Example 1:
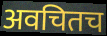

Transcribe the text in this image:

अवचितच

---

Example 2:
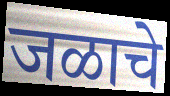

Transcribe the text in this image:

जळाचे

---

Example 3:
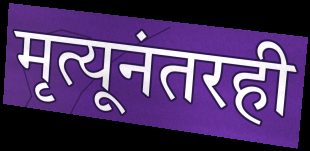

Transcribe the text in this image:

मृत्यूनंतरही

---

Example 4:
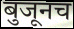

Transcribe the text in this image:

बुजूनच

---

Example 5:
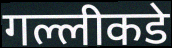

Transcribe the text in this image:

गल्लीकडे